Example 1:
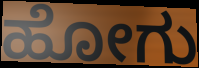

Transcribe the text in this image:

ಹೋಗು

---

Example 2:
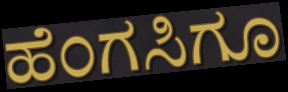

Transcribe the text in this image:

ಹೆಂಗಸಿಗೂ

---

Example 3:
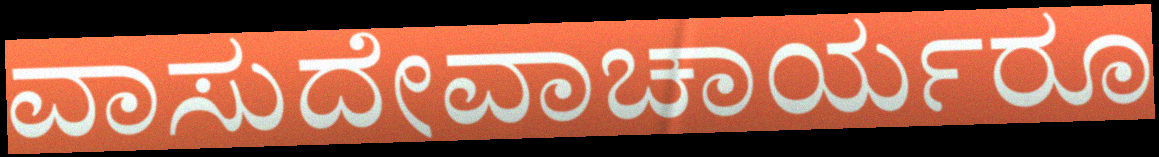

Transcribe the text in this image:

ವಾಸುದೇವಾಚಾರ್ಯರೂ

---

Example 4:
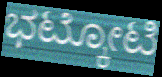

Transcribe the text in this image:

ಭಟ್ಕೋಟಿ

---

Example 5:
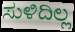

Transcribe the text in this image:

ಸುಳಿದಿಲ್ಲ